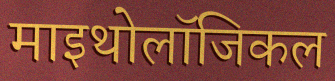
माइथोलॉजिकल